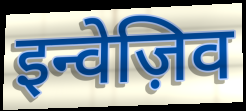
इन्वेज़िव